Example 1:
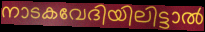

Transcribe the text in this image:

നാടകവേദിയിലിട്ടാൽ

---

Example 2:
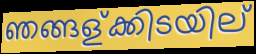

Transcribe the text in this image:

ഞങ്ങള്ക്കിടയില്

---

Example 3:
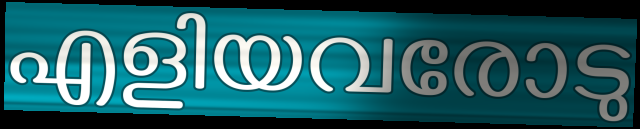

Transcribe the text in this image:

എളിയവരോടു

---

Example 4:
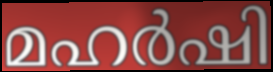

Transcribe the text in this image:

മഹർഷി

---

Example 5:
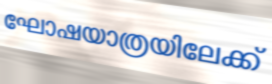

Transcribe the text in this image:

ഘോഷയാത്രയിലേക്ക്